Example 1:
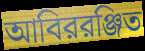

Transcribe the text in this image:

আবিররঞ্জিত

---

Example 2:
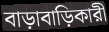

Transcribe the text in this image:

বাড়াবাড়িকারী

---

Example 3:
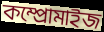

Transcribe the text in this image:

কম্প্রোমাইজ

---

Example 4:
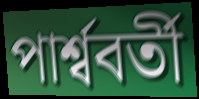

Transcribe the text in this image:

পার্শ্ববর্তী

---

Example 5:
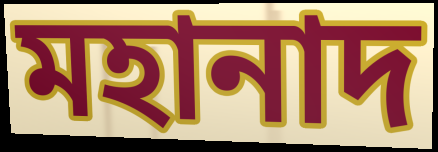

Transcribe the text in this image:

মহানাদ